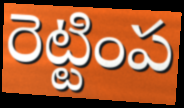
రెట్టింప